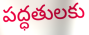
పద్ధతులకు